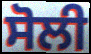
ਸੋਲੀ